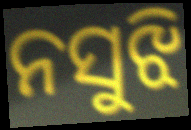
ନସୁଝି